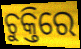
ଚୁକ୍ତିରେ